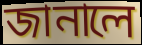
জানালে